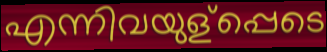
എന്നിവയുള്പ്പെടെ